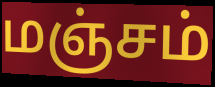
மஞ்சம்